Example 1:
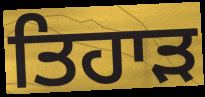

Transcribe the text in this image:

ਤਿਹਾੜ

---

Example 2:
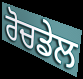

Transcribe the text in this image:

ਰੋਚਡੇਲ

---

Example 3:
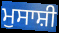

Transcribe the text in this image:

ਮੁਸਾਸ਼ੀ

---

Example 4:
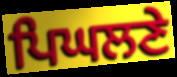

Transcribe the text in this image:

ਪਿਘਲਣੇ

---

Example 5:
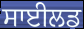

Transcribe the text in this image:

ਸਾਈਲਡ